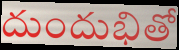
దుందుభితో